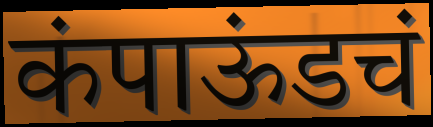
कंपाऊंडचं